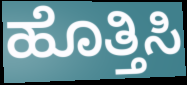
ಹೊತ್ತಿಸಿ